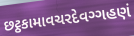
છટ્ઠકામાવચરદેવગ્ગહણં